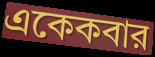
একেকবার